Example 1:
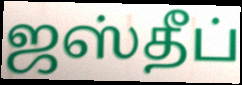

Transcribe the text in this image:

ஜஸ்தீப்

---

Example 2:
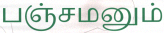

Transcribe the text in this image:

பஞ்சமனும்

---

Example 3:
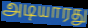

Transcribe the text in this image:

அடியாரது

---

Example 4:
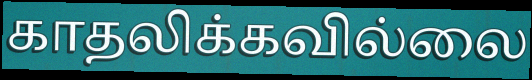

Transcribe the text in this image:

காதலிக்கவில்லை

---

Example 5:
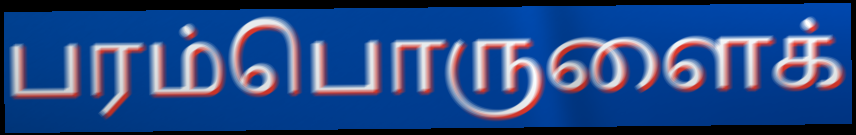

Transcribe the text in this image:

பரம்பொருளைக்